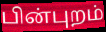
பின்புறம்